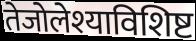
तेजोलेश्याविशिष्ट